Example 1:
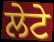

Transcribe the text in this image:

ਲੇਟੇ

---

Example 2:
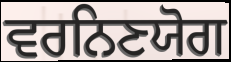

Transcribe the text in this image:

ਵਰਨਿਣਯੋਗ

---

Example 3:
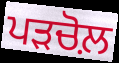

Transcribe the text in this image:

ਪੜਚੋਲ਼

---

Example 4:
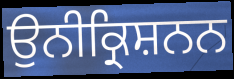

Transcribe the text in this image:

ਉਨੀਕ੍ਰਿਸ਼ਨਨ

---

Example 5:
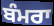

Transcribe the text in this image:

ਬੰਮਰਾ